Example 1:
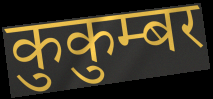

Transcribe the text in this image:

कुकुम्बर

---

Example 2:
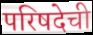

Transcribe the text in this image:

परिषदेची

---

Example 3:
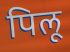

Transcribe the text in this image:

पिलू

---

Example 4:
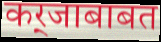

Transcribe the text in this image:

कर्जाबाबत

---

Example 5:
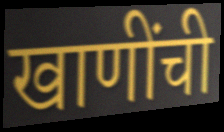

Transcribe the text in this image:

खाणींची